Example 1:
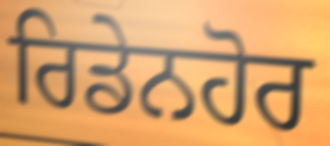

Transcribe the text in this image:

ਰਿਡੇਨਹੋਰ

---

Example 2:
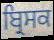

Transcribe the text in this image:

ਬ੍ਰਿਸਕ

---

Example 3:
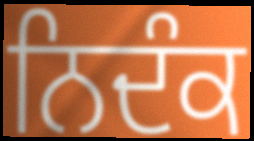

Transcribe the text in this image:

ਨਿਦੰਕ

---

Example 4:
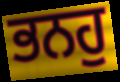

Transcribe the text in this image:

ਭਨਹੁ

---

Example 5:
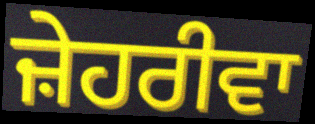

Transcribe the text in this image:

ਜ਼ੇਹਰੀਵਾ